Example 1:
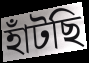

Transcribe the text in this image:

হাঁটছি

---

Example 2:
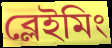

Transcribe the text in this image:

ব্লেইমিং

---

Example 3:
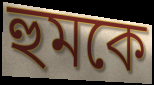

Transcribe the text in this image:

হুমকে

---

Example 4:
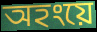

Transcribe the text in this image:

অহংয়ে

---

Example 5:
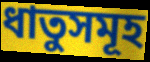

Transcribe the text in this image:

ধাতুসমূহ